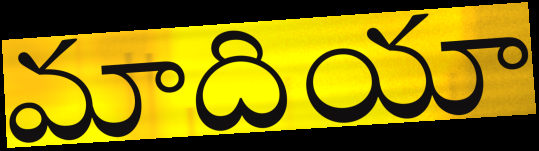
మాదియా